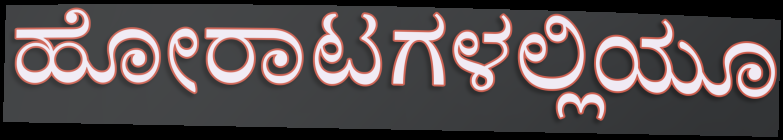
ಹೋರಾಟಗಳಲ್ಲಿಯೂ